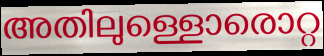
അതിലുള്ളൊരൊറ്റ